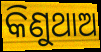
କିଣୁଥାଅ